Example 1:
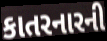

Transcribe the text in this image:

કાતરનારની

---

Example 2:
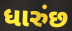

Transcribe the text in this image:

ધારુંછ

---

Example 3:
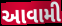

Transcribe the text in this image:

આવામી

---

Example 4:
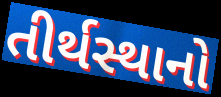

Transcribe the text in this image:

તીર્થસ્થાનો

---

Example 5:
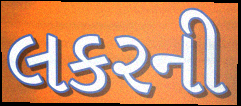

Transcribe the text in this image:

લકરની